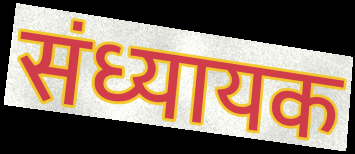
संध्यायक